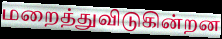
மறைத்துவிடுகின்றன